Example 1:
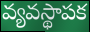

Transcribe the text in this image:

వ్యవస్థాపక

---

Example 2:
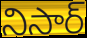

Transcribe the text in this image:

నిసార్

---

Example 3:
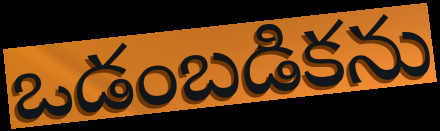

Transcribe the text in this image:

ఒడంబడికను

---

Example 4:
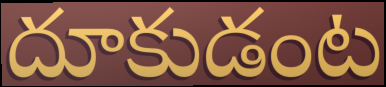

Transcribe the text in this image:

దూకుడంట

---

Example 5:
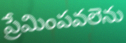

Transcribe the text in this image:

ప్రేమింపవలెను